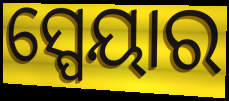
ସ୍ପେୟାର